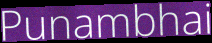
Punambhai